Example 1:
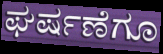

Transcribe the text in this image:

ಘರ್ಷಣೆಗೂ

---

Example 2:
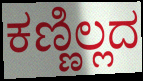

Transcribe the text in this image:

ಕಣ್ಣಿಲ್ಲದ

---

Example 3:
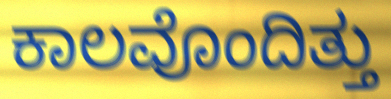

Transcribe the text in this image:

ಕಾಲವೊಂದಿತ್ತು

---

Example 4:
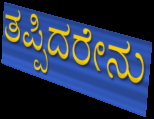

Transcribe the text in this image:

ತಪ್ಪಿದರೇನು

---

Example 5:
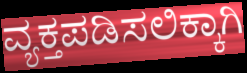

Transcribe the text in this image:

ವ್ಯಕ್ತಪಡಿಸಲಿಕ್ಕಾಗಿ